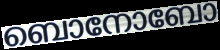
ബൊനോബോ